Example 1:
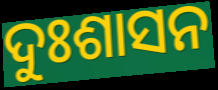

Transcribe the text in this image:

ଦୁଃଶାସନ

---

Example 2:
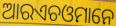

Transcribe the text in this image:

ଆରଏଚଓମାନେ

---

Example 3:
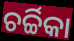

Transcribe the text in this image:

ଚର୍ଚ୍ଚିକା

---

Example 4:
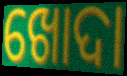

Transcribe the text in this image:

ଖୋଦା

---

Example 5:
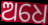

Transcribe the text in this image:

ଅଧେ